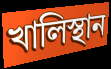
খালিস্থান